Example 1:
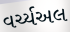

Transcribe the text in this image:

વર્ચ્યઅલ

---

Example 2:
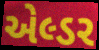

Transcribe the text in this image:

એલ્ડર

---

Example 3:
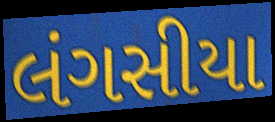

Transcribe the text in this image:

લંગસીયા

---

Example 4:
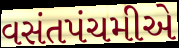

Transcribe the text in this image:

વસંતપંચમીએ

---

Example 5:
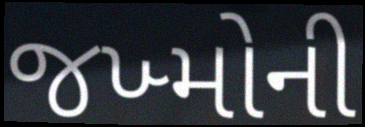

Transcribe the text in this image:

જખ્મોની